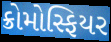
ક્રોમોસ્ફિયર